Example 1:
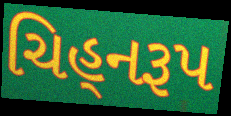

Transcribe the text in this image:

ચિહ્‌નરૂપ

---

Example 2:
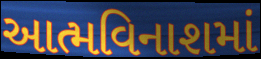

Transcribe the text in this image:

આત્મવિનાશમાં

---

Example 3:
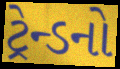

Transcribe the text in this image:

ટ્રેન્ડનો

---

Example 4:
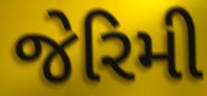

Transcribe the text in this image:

જેરિમી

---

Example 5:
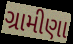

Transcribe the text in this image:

ગ્રામીણા